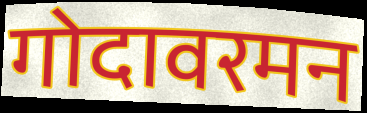
गोदावरमन